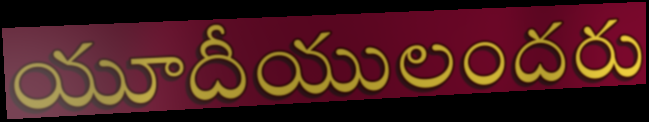
యూదీయులందరు